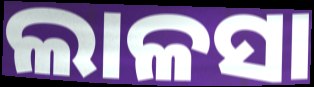
ଲାଳସା